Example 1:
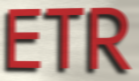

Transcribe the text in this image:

ETR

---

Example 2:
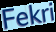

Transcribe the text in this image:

Fekri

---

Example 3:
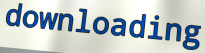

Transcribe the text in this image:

downloading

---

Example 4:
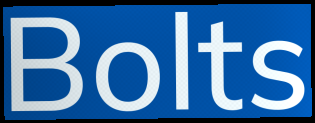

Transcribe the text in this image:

Bolts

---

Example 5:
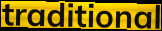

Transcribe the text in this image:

traditional